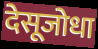
देसूजोधा